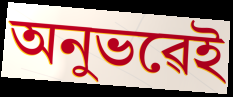
অনুভৱেই